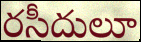
రసీదులూ